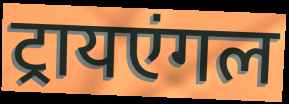
ट्रायएंगल